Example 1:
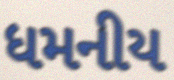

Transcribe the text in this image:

ધમનીય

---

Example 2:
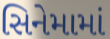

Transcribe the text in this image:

સિનેમામાં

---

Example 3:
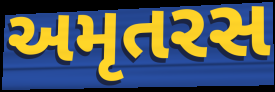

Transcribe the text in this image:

અમૃતરસ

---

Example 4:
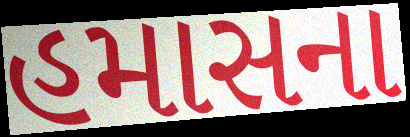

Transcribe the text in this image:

હમાસના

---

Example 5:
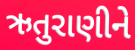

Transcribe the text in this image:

ઋતુરાણીને